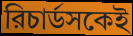
রিচার্ডসকেই